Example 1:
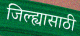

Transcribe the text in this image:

जिल्ह्यासाठी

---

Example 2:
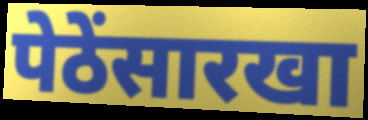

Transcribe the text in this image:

पेठेंसारखा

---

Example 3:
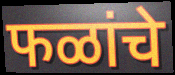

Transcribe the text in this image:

फळांचे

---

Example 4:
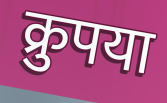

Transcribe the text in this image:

क्रुपया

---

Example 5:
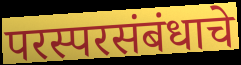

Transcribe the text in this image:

परस्परसंबंधाचे